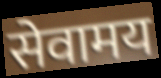
सेवामय